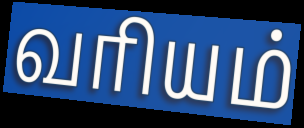
வரியம்